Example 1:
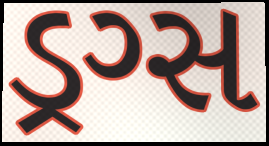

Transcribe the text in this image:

ડ્રગ્સ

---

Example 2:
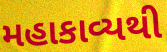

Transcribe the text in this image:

મહાકાવ્યથી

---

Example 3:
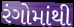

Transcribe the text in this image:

રંગોમાંથી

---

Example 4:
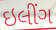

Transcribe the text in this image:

ઇલીંગ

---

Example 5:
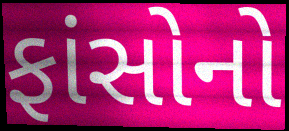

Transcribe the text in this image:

ફાંસોનો